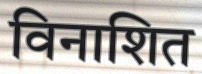
विनाशित